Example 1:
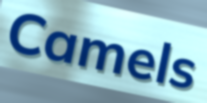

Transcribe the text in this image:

Camels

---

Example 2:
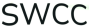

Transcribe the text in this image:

SWCC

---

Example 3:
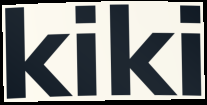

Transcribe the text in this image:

kiki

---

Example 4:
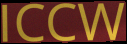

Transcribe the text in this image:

ICCW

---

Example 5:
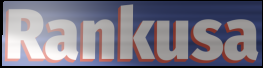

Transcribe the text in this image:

Rankusa